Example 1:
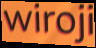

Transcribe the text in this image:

wiroji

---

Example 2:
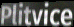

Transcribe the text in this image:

Plitvice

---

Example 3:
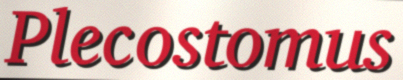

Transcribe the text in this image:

Plecostomus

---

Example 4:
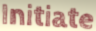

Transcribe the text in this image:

Initiate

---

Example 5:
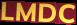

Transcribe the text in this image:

LMDC